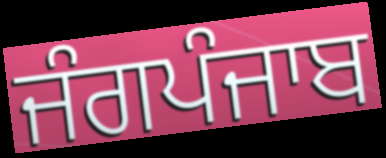
ਜੰਗਪੰਜਾਬ